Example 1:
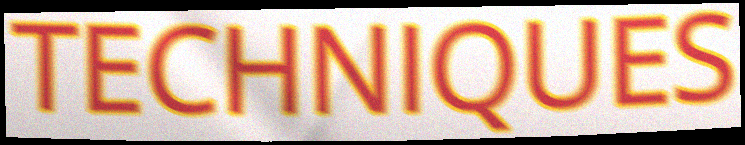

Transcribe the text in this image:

TECHNIQUES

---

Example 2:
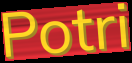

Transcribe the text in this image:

Potri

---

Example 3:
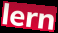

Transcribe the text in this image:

lern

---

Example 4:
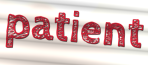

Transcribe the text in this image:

patient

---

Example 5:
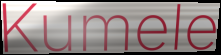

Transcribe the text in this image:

Kumele